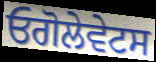
ਓਗੋਲੇਵੇਟਸ